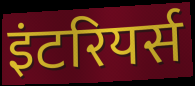
इंटरियर्स